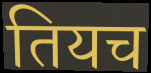
तियच